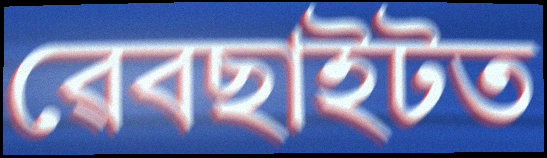
ৱেবছাইটত